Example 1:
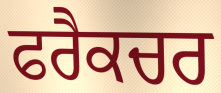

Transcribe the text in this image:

ਫਰੈਕਚਰ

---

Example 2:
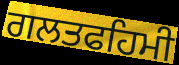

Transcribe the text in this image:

ਗਲਤਫਹਿਮੀ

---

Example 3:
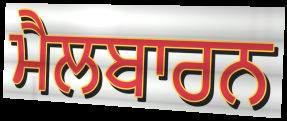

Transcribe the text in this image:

ਮੈਲਬਾਰਨ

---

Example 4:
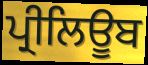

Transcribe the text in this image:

ਪ੍ਰੀਲਿਊਬ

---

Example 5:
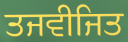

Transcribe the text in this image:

ਤਜਵੀਜਿਤ